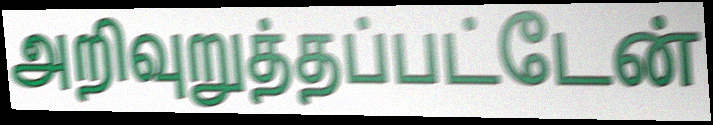
அறிவுறுத்தப்பட்டேன்